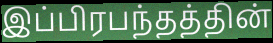
இப்பிரபந்தத்தின்